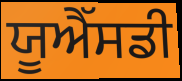
ਯੂਐੱਸਡੀ